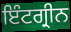
ਇੰਟਗ੍ਰੀਨ